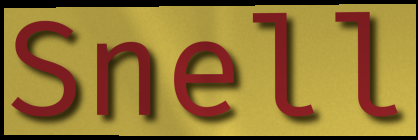
Snell